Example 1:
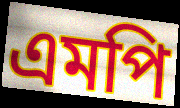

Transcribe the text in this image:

এমপি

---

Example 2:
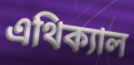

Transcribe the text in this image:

এথিক্যাল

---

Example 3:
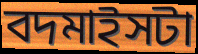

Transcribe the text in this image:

বদমাইসটা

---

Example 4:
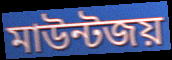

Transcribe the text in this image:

মাউন্টজয়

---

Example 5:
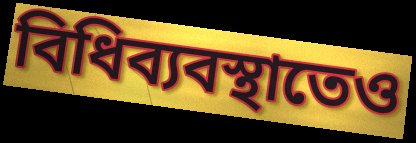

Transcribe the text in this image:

বিধিব্যবস্থাতেও